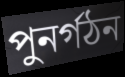
পুনৰ্গঠন